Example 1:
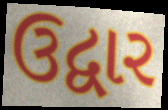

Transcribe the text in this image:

ઉદ્વાર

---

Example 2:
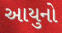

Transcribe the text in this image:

આયુનો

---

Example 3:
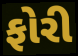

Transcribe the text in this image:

ફોરી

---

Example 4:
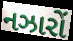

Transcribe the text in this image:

નઝારોં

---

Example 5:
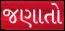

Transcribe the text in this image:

જણાતો